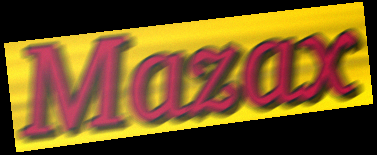
Mazax